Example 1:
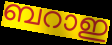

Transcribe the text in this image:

ബറാഇ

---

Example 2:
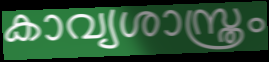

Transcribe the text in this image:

കാവ്യശാസ്ത്രം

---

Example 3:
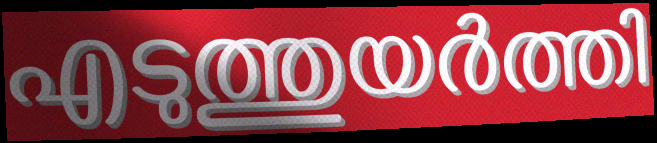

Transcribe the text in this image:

എടുത്തുയർത്തി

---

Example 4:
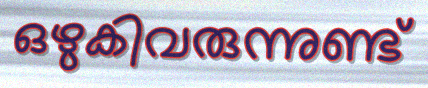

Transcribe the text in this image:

ഒഴുകിവരുന്നുണ്ട്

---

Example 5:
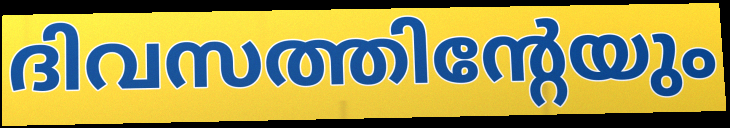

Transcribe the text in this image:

ദിവസത്തിന്റേയും